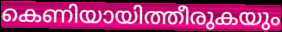
കെണിയായിത്തീരുകയും